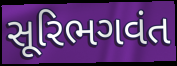
સૂરિભગવંત